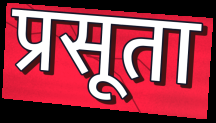
प्रसूता